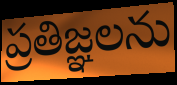
ప్రతిజ్ఞలను